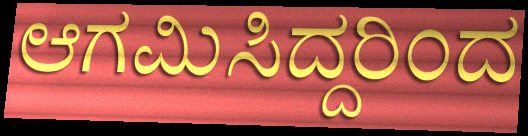
ಆಗಮಿಸಿದ್ದರಿಂದ